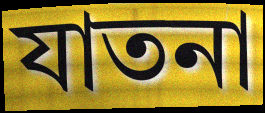
যাতনা